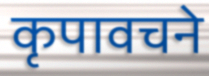
कृपावचने